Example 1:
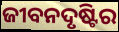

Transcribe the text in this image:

ଜୀବନଦୃଷ୍ଟିର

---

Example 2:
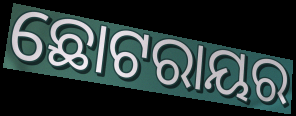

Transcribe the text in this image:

ଛୋଟରାୟର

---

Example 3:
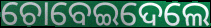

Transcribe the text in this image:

ଚୋବେଇଦେଲେ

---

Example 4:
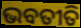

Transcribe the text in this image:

ଭବତୀତି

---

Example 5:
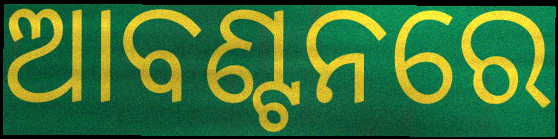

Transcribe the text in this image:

ଆବଣ୍ଟନରେ